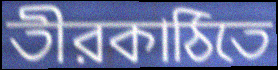
তীরকাঠিতে